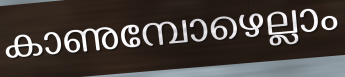
കാണുമ്പോഴെല്ലാം